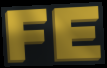
FE